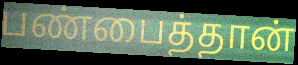
பண்பைத்தான்